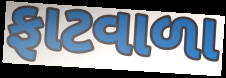
ફાટવાળા